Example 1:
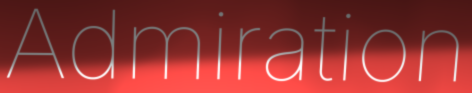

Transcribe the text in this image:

Admiration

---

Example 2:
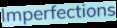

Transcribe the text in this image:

Imperfections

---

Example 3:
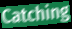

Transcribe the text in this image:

Catching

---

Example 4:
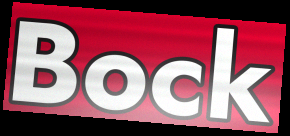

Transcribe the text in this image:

Bock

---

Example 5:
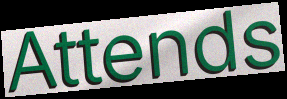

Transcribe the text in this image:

Attends